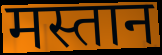
मस्तान